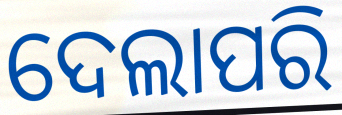
ଦେଲାପରି